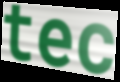
tec